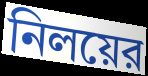
নিলয়ের